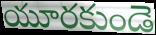
యూరకుండె